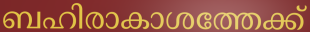
ബഹിരാകാശത്തേക്ക്